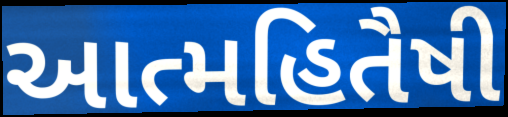
આત્મહિતૈષી